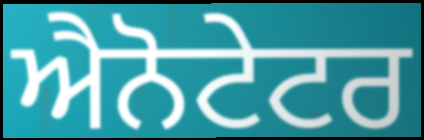
ਐਨੋਟੇਟਰ